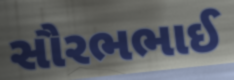
સૌરભભાઈ